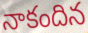
నాకందిన